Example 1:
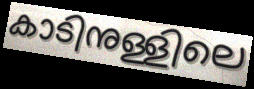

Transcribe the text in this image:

കാടിനുള്ളിലെ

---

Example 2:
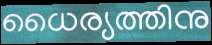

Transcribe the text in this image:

ധൈര്യത്തിനു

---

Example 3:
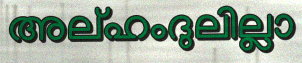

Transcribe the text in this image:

അല്ഹംദുലില്ലാ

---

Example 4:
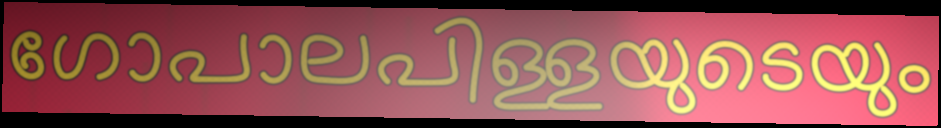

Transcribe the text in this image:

ഗോപാലപിള്ളയുടെയും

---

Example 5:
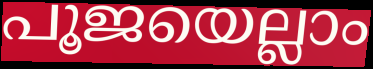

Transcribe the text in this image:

പൂജയെല്ലാം